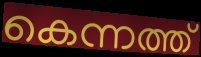
കെന്നത്ത്